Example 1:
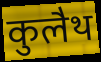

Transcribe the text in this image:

कुलैथ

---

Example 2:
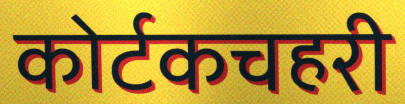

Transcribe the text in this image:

कोर्टकचहरी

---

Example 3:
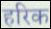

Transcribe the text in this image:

हरिक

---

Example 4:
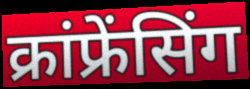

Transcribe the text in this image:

क्रांफ्रेंसिंग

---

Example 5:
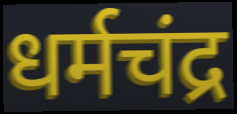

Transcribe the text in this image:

धर्मचंद्र